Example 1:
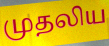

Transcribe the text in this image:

முதலிய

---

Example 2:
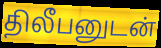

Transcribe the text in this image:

திலீபனுடன்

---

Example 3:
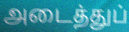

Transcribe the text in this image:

அடைத்துப்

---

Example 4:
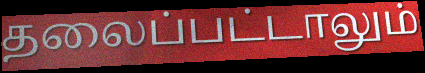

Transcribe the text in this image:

தலைப்பட்டாலும்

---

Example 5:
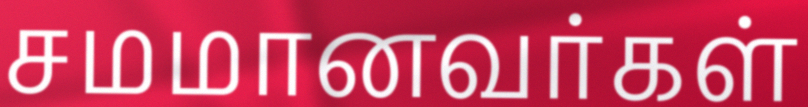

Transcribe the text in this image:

சமமானவர்கள்